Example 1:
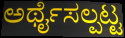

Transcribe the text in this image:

ಅರ್ಥೈಸಲ್ಪಟ್ಟ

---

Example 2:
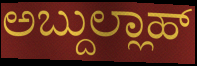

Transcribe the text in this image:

ಅಬ್ದುಲ್ಲಾಹ್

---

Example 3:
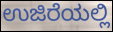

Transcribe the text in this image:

ಉಜಿರೆಯಲ್ಲಿ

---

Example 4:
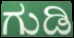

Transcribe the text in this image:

ಗುಡಿ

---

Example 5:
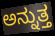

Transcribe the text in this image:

ಅನ್ನುತ್ತ